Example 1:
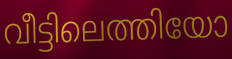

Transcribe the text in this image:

വീട്ടിലെത്തിയോ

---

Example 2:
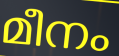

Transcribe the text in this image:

മീനം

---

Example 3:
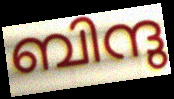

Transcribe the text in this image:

ബിന്ദു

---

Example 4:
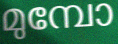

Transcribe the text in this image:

മുമ്പോ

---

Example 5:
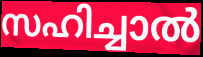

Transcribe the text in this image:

സഹിച്ചാൽ